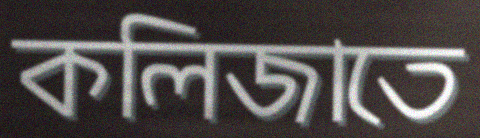
কলিজাতে